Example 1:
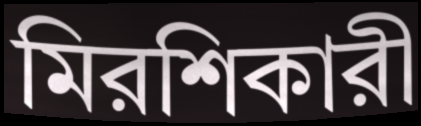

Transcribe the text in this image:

মিরশিকারী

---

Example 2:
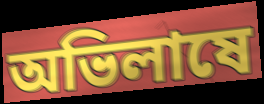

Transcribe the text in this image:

অভিলাষে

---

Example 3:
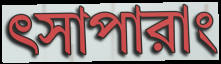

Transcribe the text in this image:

ৎসাপারাং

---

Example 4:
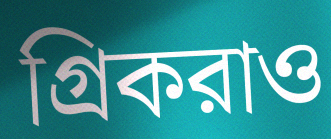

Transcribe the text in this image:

গ্রিকরাও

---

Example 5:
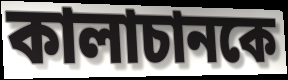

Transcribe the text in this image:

কালাচানকে